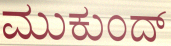
ಮುಕುಂದ್